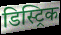
डिस्ट्रिक